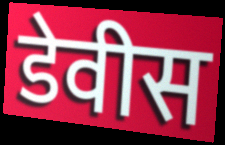
डेवीस